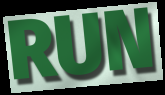
RUN